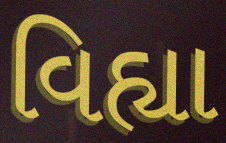
વિહ્યા